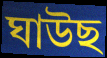
ঘাউছ